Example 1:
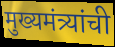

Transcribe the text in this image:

मुख्यमंत्र्यांची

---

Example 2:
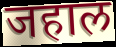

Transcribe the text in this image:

जहाल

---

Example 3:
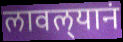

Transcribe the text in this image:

लावल्यानं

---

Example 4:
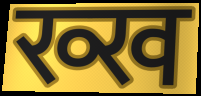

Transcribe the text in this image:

ख्ख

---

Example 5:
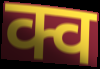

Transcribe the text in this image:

क्व